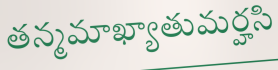
తన్మమాఖ్యాతుమర్హసి